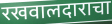
रखवालदाराचा